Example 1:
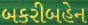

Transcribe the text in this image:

બકરીબહેન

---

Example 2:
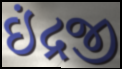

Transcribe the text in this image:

ઇંદ્રજી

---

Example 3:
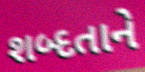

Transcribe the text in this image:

શબ્દતાને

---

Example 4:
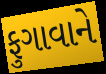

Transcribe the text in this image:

ફુગાવાને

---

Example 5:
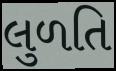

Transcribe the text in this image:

લુળતિ